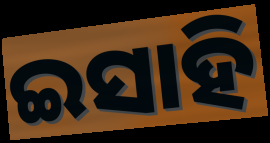
ଇସାହି